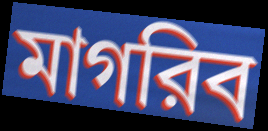
মাগরিব